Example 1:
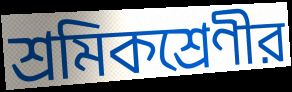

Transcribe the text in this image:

শ্রমিকশ্রেণীর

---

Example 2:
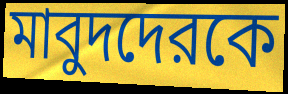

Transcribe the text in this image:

মাবুদদেরকে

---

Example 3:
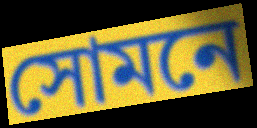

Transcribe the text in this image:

সোমনে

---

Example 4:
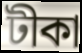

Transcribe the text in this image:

টীকা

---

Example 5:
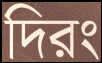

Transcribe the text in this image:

দিরং